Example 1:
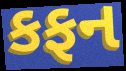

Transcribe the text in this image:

કફન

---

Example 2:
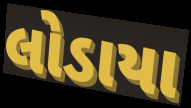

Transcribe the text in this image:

લોડાયા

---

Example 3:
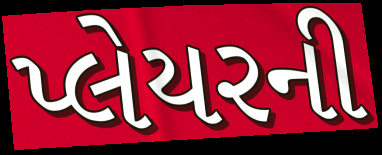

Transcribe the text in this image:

પ્લેયરની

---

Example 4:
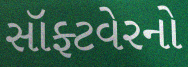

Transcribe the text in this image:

સૉફ્ટવેરનો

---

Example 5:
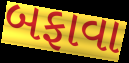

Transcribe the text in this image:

બફાવા